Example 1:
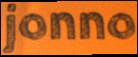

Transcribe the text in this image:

jonno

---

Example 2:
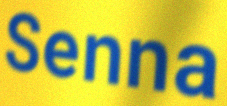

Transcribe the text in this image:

Senna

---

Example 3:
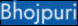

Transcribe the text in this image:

Bhojpuri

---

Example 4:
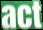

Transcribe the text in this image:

act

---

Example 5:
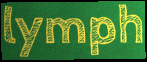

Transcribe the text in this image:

lymph